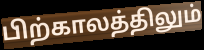
பிற்காலத்திலும்